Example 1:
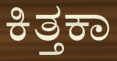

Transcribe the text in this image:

ಕಿತ್ತಕಾ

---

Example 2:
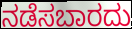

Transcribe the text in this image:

ನಡೆಸಬಾರದು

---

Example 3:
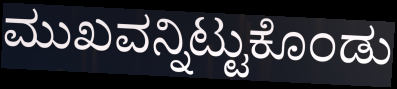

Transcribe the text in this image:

ಮುಖವನ್ನಿಟ್ಟುಕೊಂಡು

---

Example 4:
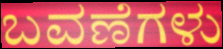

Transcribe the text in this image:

ಬವಣೆಗಳು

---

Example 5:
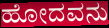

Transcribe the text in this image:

ಹೋದವನು